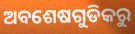
ଅବଶେଷଗୁଡିକରୁ